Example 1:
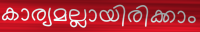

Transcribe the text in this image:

കാര്യമല്ലായിരിക്കാം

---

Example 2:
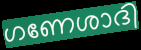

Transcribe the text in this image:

ഗണേശാദി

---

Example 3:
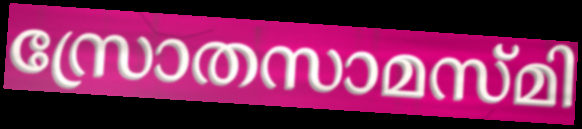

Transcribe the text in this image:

സ്രോതസാമസ്മി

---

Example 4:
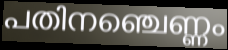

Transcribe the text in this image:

പതിനഞ്ചെണ്ണം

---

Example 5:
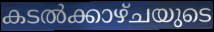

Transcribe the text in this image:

കടൽക്കാഴ്ചയുടെ